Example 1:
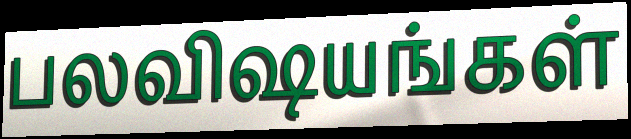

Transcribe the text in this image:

பலவிஷயங்கள்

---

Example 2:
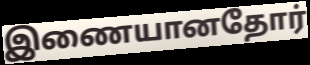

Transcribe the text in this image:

இணையானதோர்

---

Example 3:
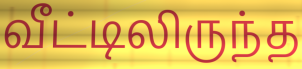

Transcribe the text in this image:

வீட்டிலிருந்த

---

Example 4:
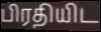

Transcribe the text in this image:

பிரதியிட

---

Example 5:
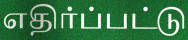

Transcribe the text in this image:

எதிர்ப்பட்டு